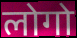
लोगो